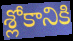
శ్లోకానికి